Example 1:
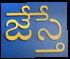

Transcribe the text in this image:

జేస్తే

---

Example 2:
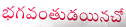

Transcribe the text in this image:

భగవంతుడయినచో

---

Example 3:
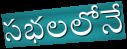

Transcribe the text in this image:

సభలలోనే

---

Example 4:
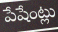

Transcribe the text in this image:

పేషేంట్లు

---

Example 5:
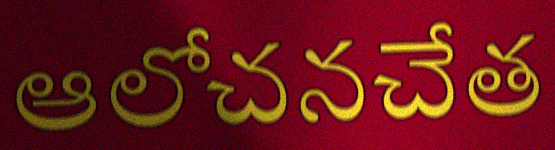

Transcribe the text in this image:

ఆలోచనచేత